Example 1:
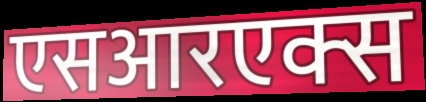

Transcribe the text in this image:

एसआरएक्स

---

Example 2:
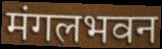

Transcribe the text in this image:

मंगलभवन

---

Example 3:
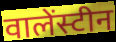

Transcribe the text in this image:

वालेंस्टीन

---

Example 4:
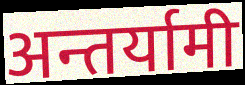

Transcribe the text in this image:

अन्तर्यामी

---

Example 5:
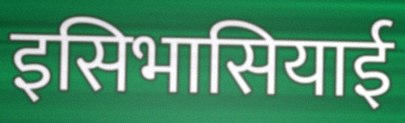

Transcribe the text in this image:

इसिभासियाई